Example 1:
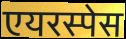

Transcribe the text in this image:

एयरस्पेस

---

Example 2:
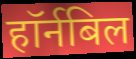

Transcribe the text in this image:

हॉर्नबिल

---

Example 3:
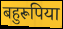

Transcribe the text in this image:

बहुरूपिया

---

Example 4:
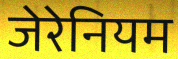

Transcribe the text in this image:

जेरेनियम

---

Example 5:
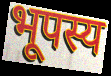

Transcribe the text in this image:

भूपस्य